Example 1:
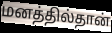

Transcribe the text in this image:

மனத்தில்தான்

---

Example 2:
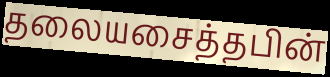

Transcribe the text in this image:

தலையசைத்தபின்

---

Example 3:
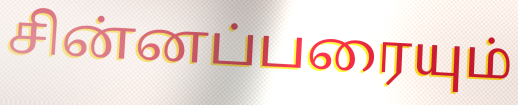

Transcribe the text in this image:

சின்னப்பரையும்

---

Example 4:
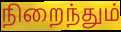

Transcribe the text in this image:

நிறைந்தும்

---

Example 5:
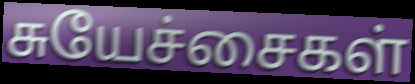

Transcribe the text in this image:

சுயேச்சைகள்